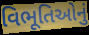
વિભૂતિઓનું